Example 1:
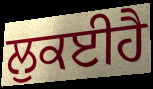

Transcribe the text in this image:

ਲੁਕਈਹੈ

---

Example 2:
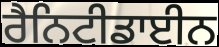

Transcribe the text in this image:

ਰੈਨਿਟੀਡਾਈਨ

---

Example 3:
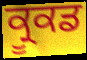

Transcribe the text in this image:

ਕ੍ਰੂਕਡ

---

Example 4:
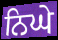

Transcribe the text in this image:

ਨਿਘੇ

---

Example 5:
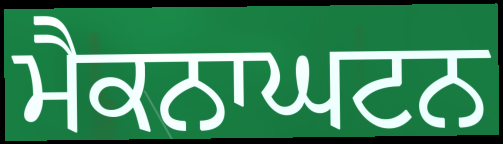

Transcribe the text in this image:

ਮੈਕਨਾਘਟਨ